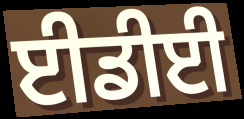
ਈਡੀਈ